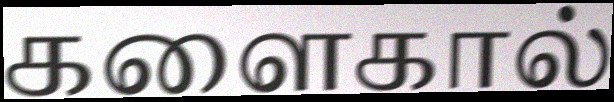
களைகால்